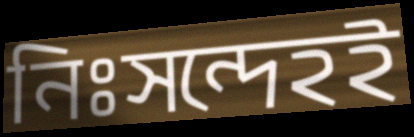
নিঃসন্দেহই